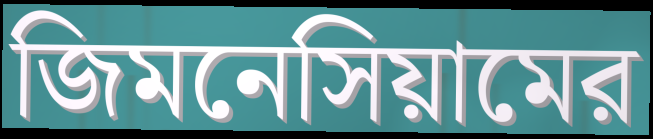
জিমনেসিয়ামের